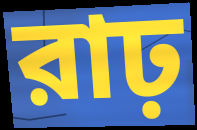
রাঢ়